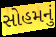
સોહમનું